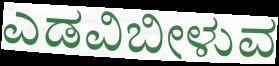
ಎಡವಿಬೀಳುವ